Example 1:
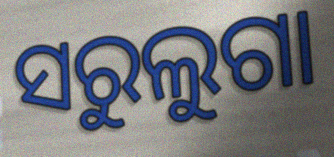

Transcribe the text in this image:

ସରୁଲୁଗା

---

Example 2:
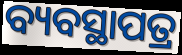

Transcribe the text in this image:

ବ୍ୟବସ୍ଥାପତ୍ର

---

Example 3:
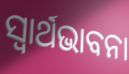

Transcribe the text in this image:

ସ୍ଵାର୍ଥଭାବନା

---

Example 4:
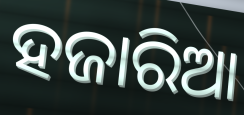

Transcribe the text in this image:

ହଜାରିଆ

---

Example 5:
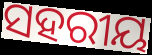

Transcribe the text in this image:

ସହରୀୟ